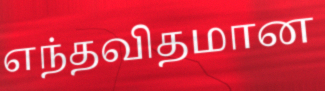
எந்தவிதமான